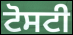
ਟੋਸਟੀ